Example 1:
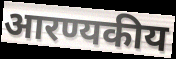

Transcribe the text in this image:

आरण्यकीय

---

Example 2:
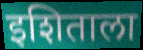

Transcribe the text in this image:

इशिताला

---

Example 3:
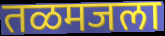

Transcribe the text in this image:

तळमजला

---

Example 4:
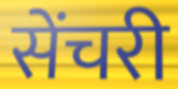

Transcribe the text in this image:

सेंचरी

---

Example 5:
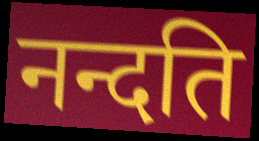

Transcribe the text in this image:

नन्दति